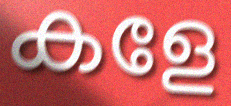
കളേ